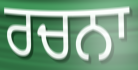
ਰਚਨਾ